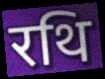
रथि